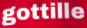
gottille